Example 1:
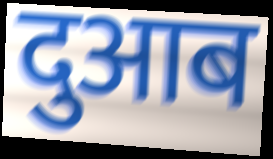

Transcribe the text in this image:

दुआब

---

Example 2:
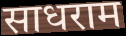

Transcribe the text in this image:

साधराम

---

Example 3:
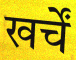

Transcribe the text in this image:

खर्चें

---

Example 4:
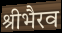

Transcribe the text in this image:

श्रीभैरव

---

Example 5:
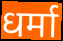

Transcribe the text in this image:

धर्मा